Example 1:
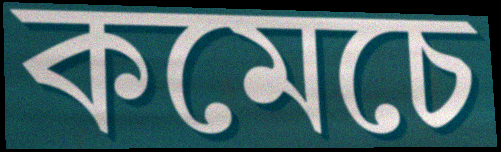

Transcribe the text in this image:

কমেচে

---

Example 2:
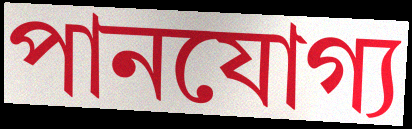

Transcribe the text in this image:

পানযোগ্য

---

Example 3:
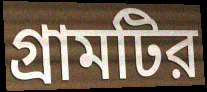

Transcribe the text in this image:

গ্রামটির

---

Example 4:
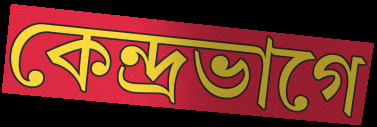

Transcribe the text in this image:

কেন্দ্রভাগে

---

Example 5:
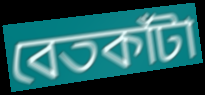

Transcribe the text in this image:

বেতকাঁটা